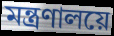
মন্ত্ৰণালয়ে